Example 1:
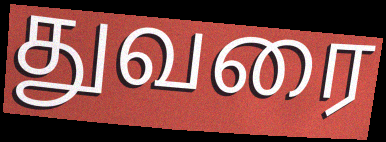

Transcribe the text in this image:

துவரை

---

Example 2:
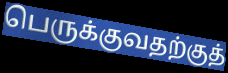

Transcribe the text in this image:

பெருக்குவதற்குத்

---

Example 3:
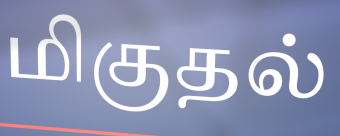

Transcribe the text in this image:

மிகுதல்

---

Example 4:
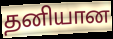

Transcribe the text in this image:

தனியான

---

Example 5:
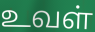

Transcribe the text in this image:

உவள்